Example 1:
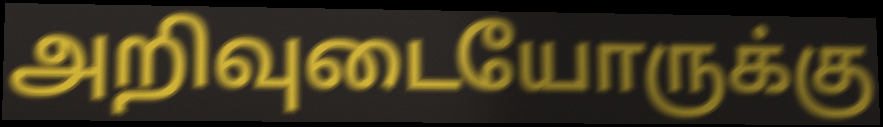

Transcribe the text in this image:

அறிவுடையோருக்கு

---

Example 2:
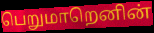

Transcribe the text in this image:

பெறுமாறெனின்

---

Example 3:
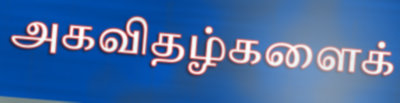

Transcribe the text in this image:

அகவிதழ்களைக்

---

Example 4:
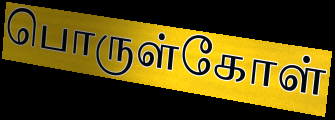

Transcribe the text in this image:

பொருள்கோள்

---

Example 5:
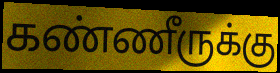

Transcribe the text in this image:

கண்ணீருக்கு